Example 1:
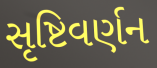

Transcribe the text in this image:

સૃષ્ટિવર્ણન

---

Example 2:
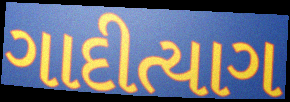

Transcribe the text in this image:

ગાદીત્યાગ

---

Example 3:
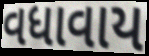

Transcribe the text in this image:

વધાવાય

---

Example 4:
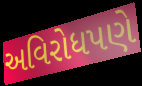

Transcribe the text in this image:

અવિરોધપણે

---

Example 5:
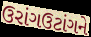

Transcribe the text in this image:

ઉરાંગઉટાંગને